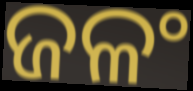
ଜଳଂ